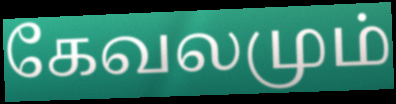
கேவலமும்